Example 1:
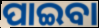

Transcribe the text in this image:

ପାଇବା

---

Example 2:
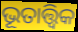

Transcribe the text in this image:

ଭୂତାତ୍ତ୍ୱିକ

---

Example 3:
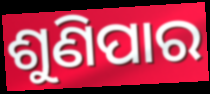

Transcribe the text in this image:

ଶୁଣିପାର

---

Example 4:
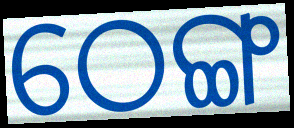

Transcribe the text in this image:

ଠେଙ୍ଗ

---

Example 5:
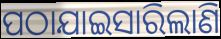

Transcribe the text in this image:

ପଠାଯାଇସାରିଲାଣି